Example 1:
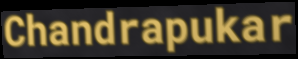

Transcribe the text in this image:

Chandrapukar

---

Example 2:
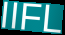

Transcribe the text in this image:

IIFL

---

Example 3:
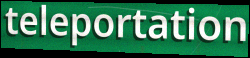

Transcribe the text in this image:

teleportation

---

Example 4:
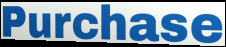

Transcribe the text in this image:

Purchase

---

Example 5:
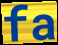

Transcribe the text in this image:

fa